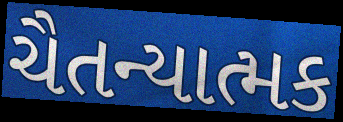
ચૈતન્યાત્મક